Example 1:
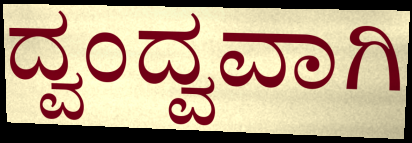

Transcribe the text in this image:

ದ್ವಂದ್ವವಾಗಿ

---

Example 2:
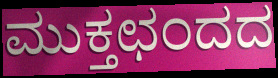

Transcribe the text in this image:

ಮುಕ್ತಛಂದದ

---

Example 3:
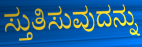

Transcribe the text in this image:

ಸ್ತುತಿಸುವುದನ್ನು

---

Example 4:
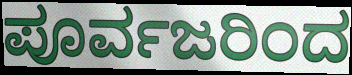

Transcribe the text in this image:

ಪೂರ್ವಜರಿಂದ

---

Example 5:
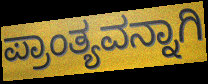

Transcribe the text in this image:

ಪ್ರಾಂತ್ಯವನ್ನಾಗಿ